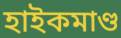
হাইকমাণ্ড